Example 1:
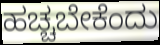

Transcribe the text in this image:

ಹಚ್ಚಬೇಕೆಂದು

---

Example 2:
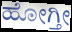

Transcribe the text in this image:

ಹೋಗ್ತೀ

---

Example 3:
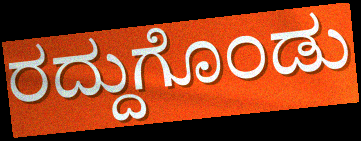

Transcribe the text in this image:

ರದ್ದುಗೊಂಡು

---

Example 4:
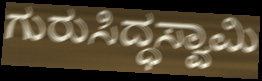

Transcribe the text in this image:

ಗುರುಸಿದ್ಧಸ್ವಾಮಿ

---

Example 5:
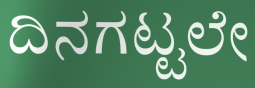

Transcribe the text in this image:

ದಿನಗಟ್ಟಲೇ